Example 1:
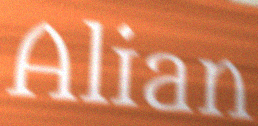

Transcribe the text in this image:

Alian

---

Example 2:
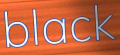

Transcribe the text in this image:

black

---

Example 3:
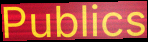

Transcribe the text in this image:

Publics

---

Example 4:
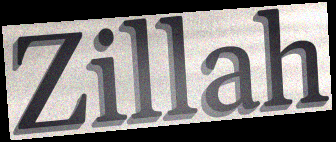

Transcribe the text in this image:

Zillah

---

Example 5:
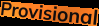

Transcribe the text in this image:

Provisional